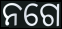
ନଗେ